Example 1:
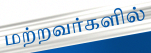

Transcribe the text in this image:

மற்றவர்களில்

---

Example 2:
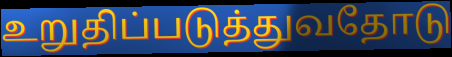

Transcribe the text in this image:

உறுதிப்படுத்துவதோடு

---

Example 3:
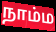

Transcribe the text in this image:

நாம்ம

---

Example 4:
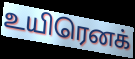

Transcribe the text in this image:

உயிரெனக்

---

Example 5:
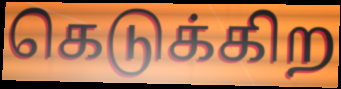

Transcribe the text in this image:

கெடுக்கிற